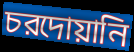
চরদোয়ানি